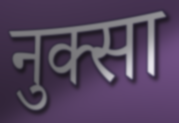
नुक्सा